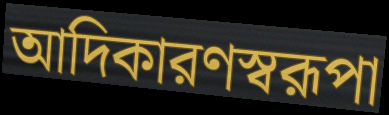
আদিকারণস্বরূপা